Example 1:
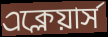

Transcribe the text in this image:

এক্লেয়ার্স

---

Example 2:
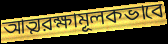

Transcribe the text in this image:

আত্মরক্ষামূলকভাবে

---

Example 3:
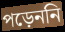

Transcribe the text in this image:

পড়েননি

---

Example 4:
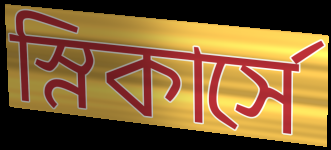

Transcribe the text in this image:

স্নিকার্সে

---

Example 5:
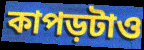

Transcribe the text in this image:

কাপড়টাও